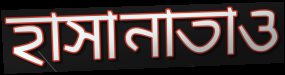
হাসানাতাও